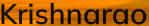
Krishnarao